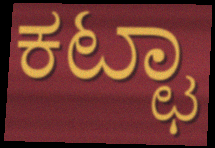
ಕಟ್ಟಾ